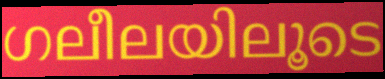
ഗലീലയിലൂടെ